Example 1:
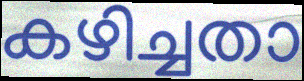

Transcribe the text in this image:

കഴിച്ചതാ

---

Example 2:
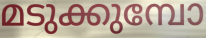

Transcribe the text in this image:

മടുക്കുമ്പോ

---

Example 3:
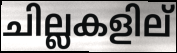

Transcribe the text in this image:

ചില്ലകളില്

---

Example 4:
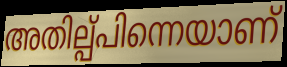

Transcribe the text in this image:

അതില്പ്പിന്നെയാണ്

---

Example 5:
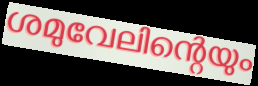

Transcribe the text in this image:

ശമുവേലിന്റെയും